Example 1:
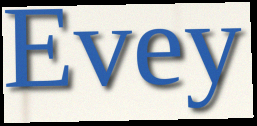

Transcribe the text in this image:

Evey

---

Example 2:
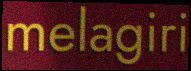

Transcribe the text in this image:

melagiri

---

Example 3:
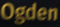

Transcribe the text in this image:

Ogden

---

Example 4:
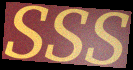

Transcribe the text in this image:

SSS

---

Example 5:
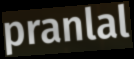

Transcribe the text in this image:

pranlal